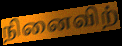
நினைவிற்